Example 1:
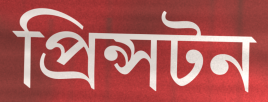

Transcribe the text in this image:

প্ৰিন্সটন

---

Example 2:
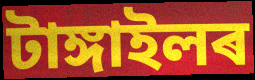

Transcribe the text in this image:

টাঙ্গাইলৰ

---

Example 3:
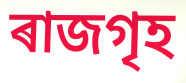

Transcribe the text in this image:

ৰাজগৃহ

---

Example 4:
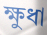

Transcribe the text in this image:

ক্ষুধা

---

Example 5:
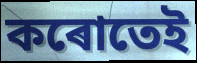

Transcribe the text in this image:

কৰোতেই